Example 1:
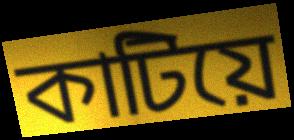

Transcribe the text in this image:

কাটিয়ে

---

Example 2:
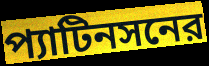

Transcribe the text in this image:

প্যাটিনসনের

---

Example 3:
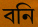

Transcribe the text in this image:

বনি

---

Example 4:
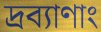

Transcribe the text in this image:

দ্রব্যাণাং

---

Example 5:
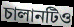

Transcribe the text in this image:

চালানটিও